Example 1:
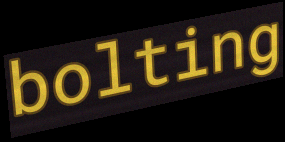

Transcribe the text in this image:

bolting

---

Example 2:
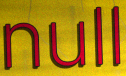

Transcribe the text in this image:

null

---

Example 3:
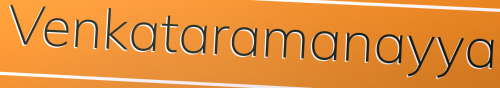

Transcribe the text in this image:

Venkataramanayya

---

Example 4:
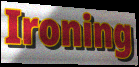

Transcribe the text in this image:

Ironing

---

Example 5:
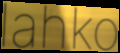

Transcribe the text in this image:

lahko